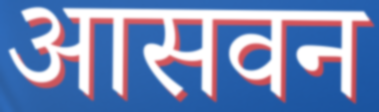
आसवन